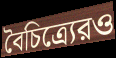
বৈচিত্র্যেরও